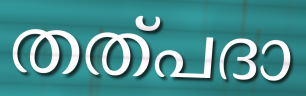
തത്പദാ